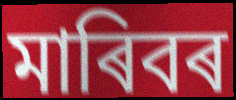
মাৰিবৰ